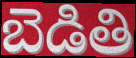
బెడితి